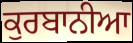
ਕੁਰਬਾਨੀਆ